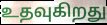
உதவுகிறது